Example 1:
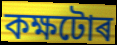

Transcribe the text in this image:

কক্ষটোৰ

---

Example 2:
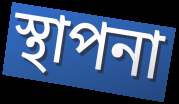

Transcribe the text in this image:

স্থাপনা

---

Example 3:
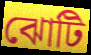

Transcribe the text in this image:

ঝোটি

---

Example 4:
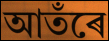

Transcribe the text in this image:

আতঁৰে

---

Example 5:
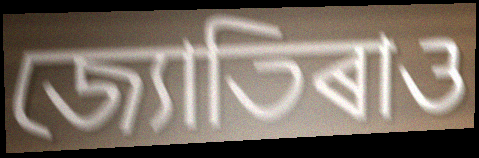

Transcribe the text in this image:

জ্যোতিৰাও